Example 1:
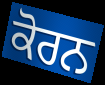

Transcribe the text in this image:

ਕੋਰਨ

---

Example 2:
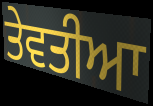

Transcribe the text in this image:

ਤੇਵਤੀਆ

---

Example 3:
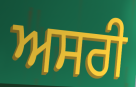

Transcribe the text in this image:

ਅਸਰੀ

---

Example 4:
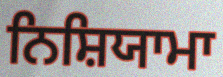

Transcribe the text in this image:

ਨਿਸ਼ਿਯਾਮਾ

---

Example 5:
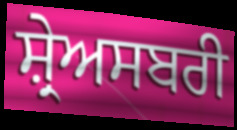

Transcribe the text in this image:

ਸ਼੍ਰੇਅਸਬਰੀ